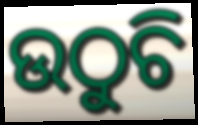
ଉଠୁଚି